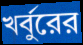
খর্বুরের